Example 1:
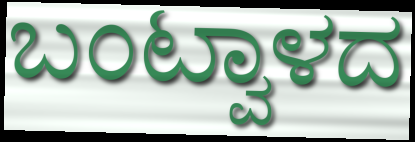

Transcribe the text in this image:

ಬಂಟ್ವಾಳದ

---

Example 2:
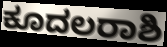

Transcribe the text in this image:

ಕೂದಲರಾಶಿ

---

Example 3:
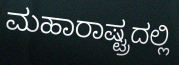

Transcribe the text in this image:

ಮಹಾರಾಷ್ಟ್ರದಲ್ಲಿ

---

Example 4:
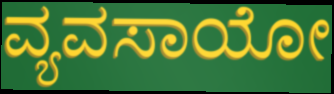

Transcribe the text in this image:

ವ್ಯವಸಾಯೋ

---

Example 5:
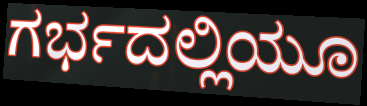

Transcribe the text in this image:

ಗರ್ಭದಲ್ಲಿಯೂ